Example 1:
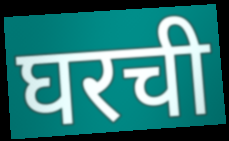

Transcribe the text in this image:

घरची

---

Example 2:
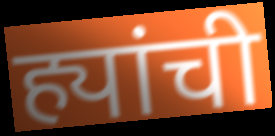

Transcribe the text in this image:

ह्यांची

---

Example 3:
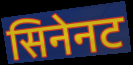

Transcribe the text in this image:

सिनेनट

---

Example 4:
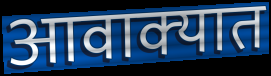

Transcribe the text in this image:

आवाक्‍यात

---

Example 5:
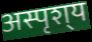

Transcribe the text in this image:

अस्पृश्य